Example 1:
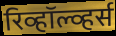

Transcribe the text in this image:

रिव्हॉल्व्हर्स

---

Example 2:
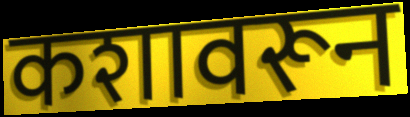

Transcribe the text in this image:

कशावरून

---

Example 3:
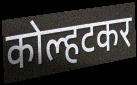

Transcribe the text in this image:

कोल्हटकर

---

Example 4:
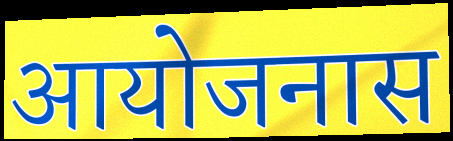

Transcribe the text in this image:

आयोजनास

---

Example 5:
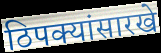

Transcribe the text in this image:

ठिपक्यांसारखे